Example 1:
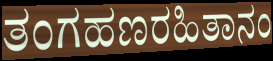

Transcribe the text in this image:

ತಂಗಹಣರಹಿತಾನಂ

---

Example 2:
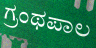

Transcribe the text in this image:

ಗ್ರಂಥಪಾಲ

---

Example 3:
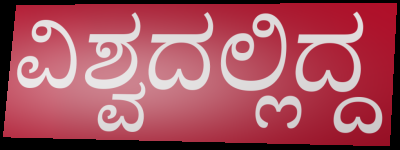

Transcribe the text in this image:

ವಿಶ್ವದಲ್ಲಿದ್ದ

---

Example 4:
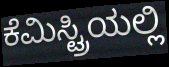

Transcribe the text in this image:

ಕೆಮಿಸ್ಟ್ರಿಯಲ್ಲಿ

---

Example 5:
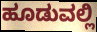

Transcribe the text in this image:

ಹೂಡುವಲ್ಲಿ